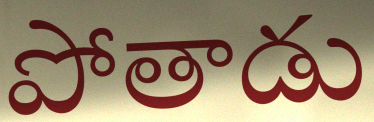
పోతాడు